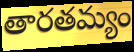
తారతమ్యం